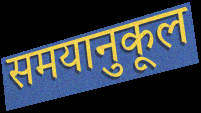
समयानुकूल